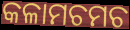
କଳାମଚମଚ